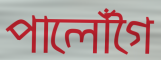
পালোঁগৈ